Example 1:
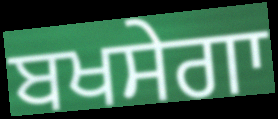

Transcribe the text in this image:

ਬਖਸੇਗਾ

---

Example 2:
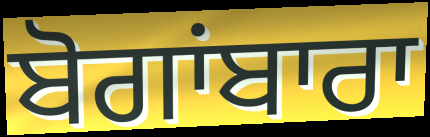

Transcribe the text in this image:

ਬੋਗਾਂਬਾਰਾ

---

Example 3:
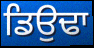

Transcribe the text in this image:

ਡਿਉਢਾ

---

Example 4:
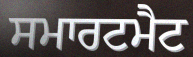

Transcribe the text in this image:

ਸਮਾਰਟਮੈਟ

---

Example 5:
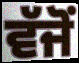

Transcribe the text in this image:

ਵੱਜੋਂ